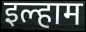
इल्हाम